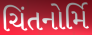
ચિંતનોર્મિ